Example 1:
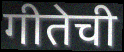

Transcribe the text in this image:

गीतेची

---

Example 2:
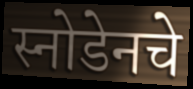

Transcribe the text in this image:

स्नोडेनचे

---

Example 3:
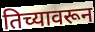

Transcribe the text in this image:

तिच्यावरून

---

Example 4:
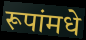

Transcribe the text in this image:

रूपांमधे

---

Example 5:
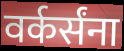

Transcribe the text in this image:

वर्कर्संना